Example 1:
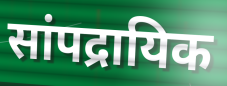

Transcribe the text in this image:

सांपद्रायिक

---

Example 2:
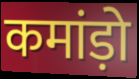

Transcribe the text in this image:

कमांड़ो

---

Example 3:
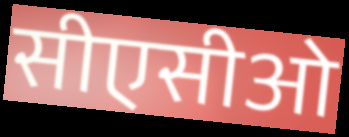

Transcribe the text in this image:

सीएसीओ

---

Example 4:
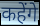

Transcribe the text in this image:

कहेंगे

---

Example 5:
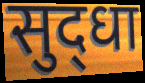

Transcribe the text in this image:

सुद्धा